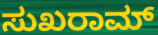
ಸುಖರಾಮ್